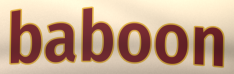
baboon